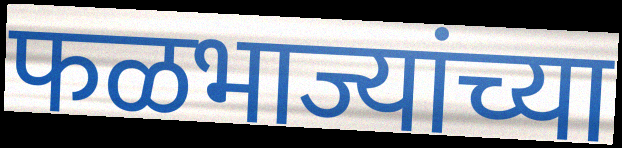
फळभाज्यांच्या